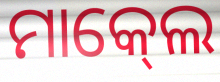
ମାକ୍‍ଲେ